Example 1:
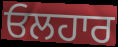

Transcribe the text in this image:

ਓਲਹਾਰ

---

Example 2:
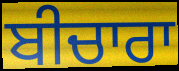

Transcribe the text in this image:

ਬੀਚਾਰਾ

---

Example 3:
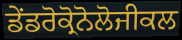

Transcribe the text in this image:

ਡੇਂਡਰੋਕ੍ਰੋਨੋਲੋਜੀਕਲ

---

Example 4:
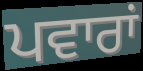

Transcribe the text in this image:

ਪਵਾਰਾਂ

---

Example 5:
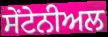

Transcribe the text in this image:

ਸੇਂਟੇਨੀਅਲ